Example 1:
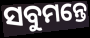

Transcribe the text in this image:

ସବୁମନ୍ତେ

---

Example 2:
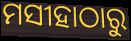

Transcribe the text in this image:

ମସୀହାଠାରୁ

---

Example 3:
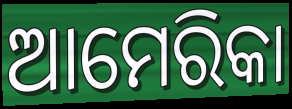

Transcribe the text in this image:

ଆମେରିକା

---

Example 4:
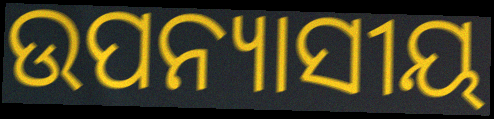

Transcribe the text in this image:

ଉପନ୍ୟାସୀୟ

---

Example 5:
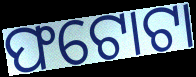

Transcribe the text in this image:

ଫଟୋଟା